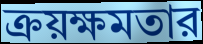
ক্রয়ক্ষমতার